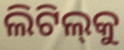
ଲିଟିଲ୍‌କୁ